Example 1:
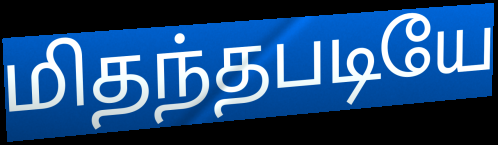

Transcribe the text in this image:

மிதந்தபடியே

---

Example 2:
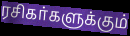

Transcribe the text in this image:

ரசிகர்களுக்கும்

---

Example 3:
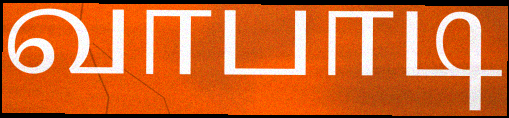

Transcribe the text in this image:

வாபாடி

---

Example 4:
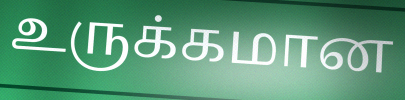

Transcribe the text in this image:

உருக்கமான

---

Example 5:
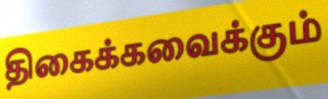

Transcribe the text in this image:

திகைக்கவைக்கும்